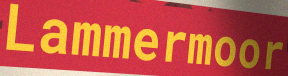
Lammermoor